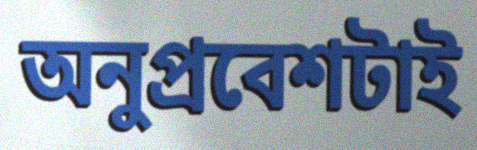
অনুপ্রবেশটাই